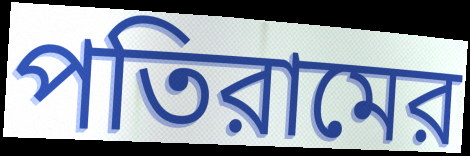
পতিরামের